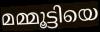
മമ്മൂട്ടിയെ